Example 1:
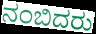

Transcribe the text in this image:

ನಂಬಿದರು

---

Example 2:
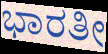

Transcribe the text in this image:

ಭಾರತೀ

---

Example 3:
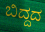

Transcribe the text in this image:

ಬಿದ್ದದ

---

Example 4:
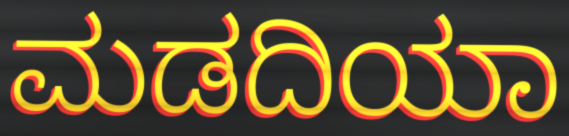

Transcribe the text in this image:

ಮಡದಿಯಾ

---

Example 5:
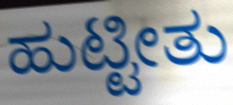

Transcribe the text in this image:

ಹುಟ್ಟೀತು